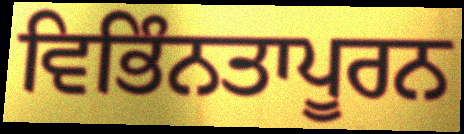
ਵਿਭਿੰਨਤਾਪੂਰਨ